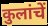
कुलांचें